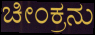
ಚೀಂಕ್ರನು